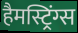
हैमस्ट्रिंग्स